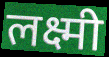
लक्ष्‍मी